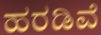
ಹರಡಿವೆ